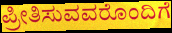
ಪ್ರೀತಿಸುವವರೊಂದಿಗೆ